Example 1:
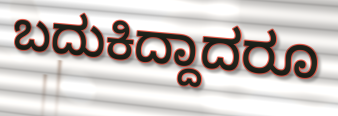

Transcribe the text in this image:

ಬದುಕಿದ್ದಾದರೂ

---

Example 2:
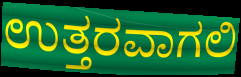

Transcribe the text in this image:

ಉತ್ತರವಾಗಲಿ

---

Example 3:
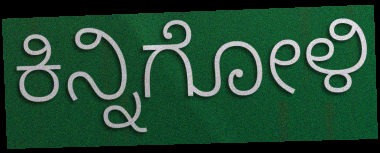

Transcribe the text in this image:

ಕಿನ್ನಿಗೋಳಿ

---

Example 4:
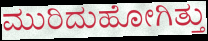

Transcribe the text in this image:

ಮುರಿದುಹೋಗಿತ್ತು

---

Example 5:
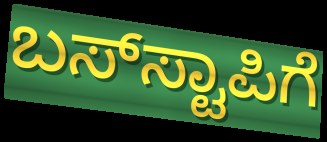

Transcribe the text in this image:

ಬಸ್‌ಸ್ಟಾಪಿಗೆ